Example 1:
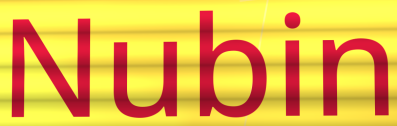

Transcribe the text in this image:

Nubin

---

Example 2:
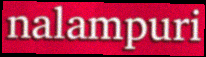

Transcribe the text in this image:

nalampuri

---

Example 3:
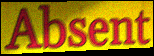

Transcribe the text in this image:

Absent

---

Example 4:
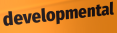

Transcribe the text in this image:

developmental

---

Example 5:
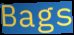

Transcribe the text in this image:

Bags